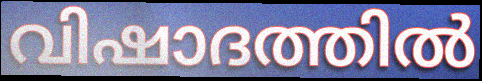
വിഷാദത്തിൽ